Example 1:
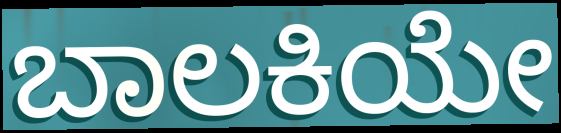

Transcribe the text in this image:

ಬಾಲಕಿಯೇ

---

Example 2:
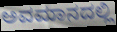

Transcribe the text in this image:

ಅವಮಾನದಲ್ಲಿ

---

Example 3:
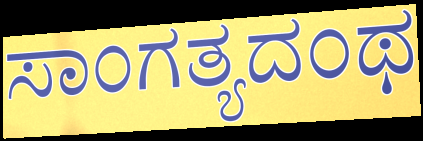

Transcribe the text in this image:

ಸಾಂಗತ್ಯದಂಥ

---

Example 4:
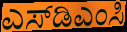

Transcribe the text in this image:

ಎಸ್‌ಡಿಎಂಸಿ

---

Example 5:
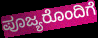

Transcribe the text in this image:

ಪೂಜ್ಯರೊಂದಿಗೆ